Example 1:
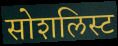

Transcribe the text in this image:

सोशलिस्ट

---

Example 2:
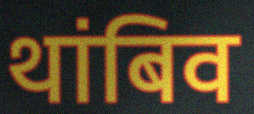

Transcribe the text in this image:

थांबिव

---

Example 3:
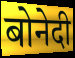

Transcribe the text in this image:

बोनेदी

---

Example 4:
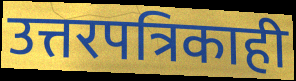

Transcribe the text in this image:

उत्तरपत्रिकाही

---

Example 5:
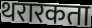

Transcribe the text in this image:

थरारकता